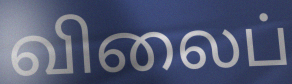
விலைப்